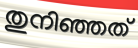
തുനിഞ്ഞത്